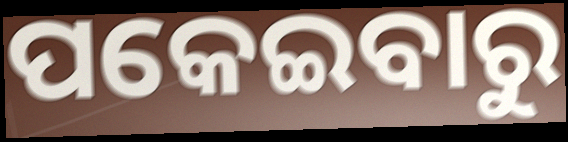
ପକେଇବାରୁ